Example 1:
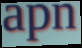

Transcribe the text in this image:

apn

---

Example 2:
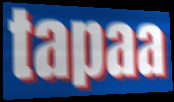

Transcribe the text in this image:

tapaa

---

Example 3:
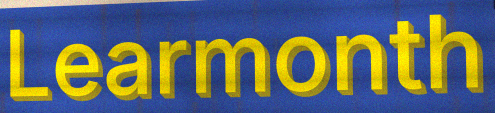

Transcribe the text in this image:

Learmonth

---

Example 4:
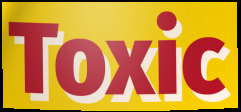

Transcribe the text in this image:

Toxic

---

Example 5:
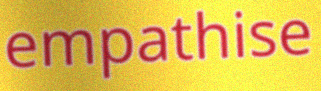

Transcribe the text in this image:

empathise